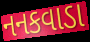
નનકવાડા